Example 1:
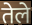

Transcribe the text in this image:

तेले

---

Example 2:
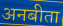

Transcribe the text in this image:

अनबीता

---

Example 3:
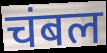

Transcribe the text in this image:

चंबल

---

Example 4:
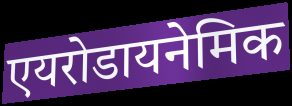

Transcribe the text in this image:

एयरोडायनेमिक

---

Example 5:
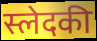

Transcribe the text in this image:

स्लेदकी